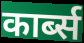
कार्ब्स